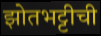
झोतभट्टीची